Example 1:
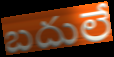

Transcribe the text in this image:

బదులే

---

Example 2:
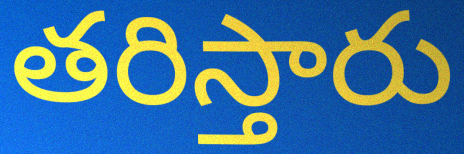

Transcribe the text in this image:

తరిస్తారు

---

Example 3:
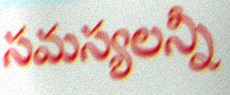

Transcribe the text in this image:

సమస్యలన్నీ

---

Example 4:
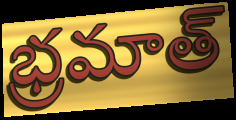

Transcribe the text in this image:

భ్రమాత్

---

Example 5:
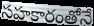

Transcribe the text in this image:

సహకారంతోనే